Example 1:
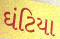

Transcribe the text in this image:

ઘંટિયા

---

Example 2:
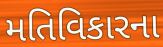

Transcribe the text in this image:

મતિવિકારના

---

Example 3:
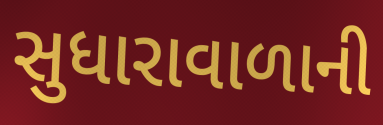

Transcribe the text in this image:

સુધારાવાળાની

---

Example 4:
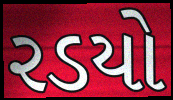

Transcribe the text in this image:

રડયો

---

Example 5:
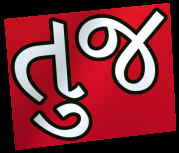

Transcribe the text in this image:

તુજ